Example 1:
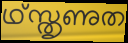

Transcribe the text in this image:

ഥ്സ്തൃണുത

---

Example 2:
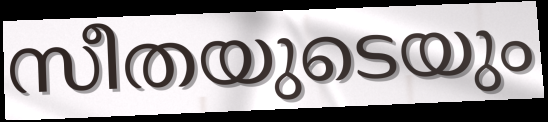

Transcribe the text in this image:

സീതയുടെയും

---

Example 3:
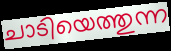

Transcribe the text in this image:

ചാടിയെത്തുന്ന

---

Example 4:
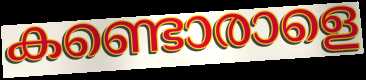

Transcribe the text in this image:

കണ്ടൊരാളെ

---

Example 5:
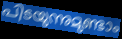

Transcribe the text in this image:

പിടയുന്നുമുണ്ടാം